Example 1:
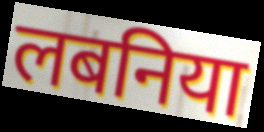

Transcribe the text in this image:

लबनिया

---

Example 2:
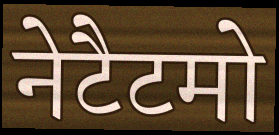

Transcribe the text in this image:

नेटैटमो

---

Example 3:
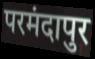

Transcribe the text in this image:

परमंदापुर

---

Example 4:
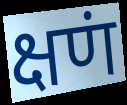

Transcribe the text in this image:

क्षणं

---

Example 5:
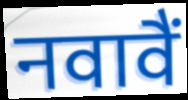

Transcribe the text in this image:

नवावैं